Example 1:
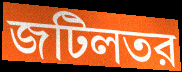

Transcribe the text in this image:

জটিলতর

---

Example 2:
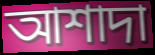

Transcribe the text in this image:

আশাদা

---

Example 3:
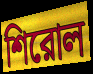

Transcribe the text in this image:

শিরোল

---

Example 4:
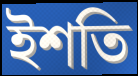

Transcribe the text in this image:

ইশতি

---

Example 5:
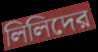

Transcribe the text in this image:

লিলিদের